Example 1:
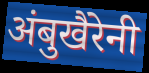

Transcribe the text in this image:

अंबुखैरेनी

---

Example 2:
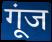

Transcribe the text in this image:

गूंज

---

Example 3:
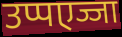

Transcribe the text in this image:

उप्पएज्जा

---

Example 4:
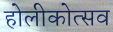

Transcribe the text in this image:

होलीकोत्सव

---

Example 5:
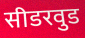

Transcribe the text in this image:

सीडरवुड